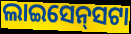
ଲାଇସେନ୍‍ସଟା